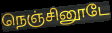
நெஞ்சினூடே